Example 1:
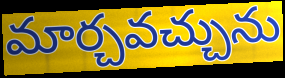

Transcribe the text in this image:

మార్చవచ్చును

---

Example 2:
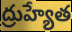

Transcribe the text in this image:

ద్రుహ్యేత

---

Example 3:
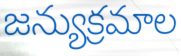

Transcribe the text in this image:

జన్యుక్రమాల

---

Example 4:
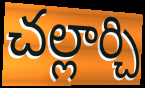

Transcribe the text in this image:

చల్లార్చి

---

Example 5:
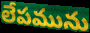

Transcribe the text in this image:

లేపమును